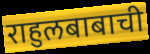
राहुलबाबाची